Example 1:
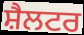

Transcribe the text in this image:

ਸ਼ੈਲਟਰ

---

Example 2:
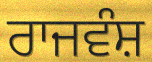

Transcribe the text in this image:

ਰਾਜਵੰਸ਼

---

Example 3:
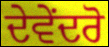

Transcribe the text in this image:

ਦੇਵੇਂਦਰੋ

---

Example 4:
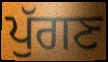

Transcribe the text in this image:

ਪੁੱਗਣ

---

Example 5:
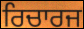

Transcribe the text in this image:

ਰਿਚਾਰਜ